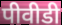
पीवीडी